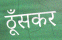
ठूँसकर